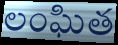
లంఘిత